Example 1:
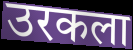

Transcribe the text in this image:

उरकला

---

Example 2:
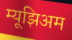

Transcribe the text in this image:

म्यूझिअम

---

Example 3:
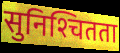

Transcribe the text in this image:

सुनिश्चितता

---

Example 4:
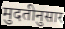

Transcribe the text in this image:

मुदतीनुसार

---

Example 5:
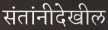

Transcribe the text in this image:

संतांनीदेखील